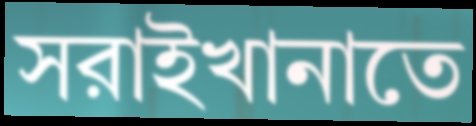
সরাইখানাতে